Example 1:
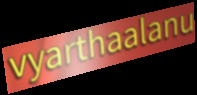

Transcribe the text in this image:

vyarthaalanu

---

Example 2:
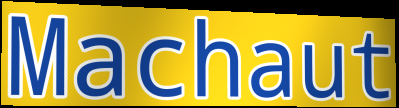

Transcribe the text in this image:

Machaut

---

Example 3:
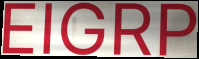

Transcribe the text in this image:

EIGRP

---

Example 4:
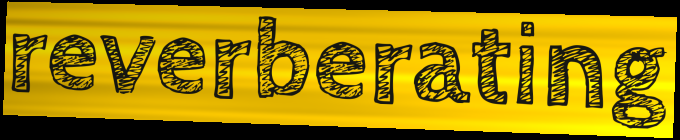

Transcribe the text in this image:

reverberating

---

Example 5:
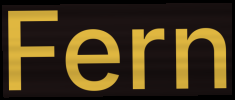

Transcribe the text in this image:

Fern